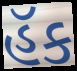
હૅક